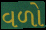
વળો